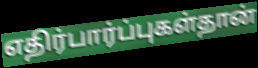
எதிர்பார்ப்புகள்தான்